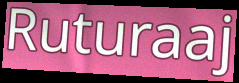
Ruturaaj